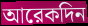
আরেকদিন